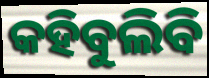
କହିବୁଲିବି